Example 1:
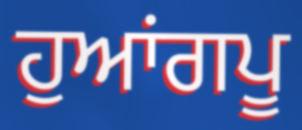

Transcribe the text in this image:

ਹੁਆਂਗਪੂ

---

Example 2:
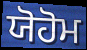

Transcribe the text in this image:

ਯੋਹੋਮ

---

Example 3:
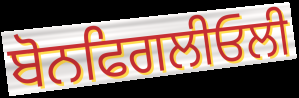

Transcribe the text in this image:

ਬੋਨਫਿਗਲੀਓਲੀ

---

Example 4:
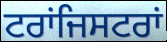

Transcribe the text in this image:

ਟਰਾਂਜਿਸਟਰਾਂ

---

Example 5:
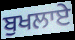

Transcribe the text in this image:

ਬੁਖਲਾਏ